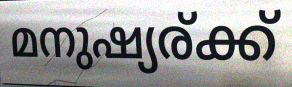
മനുഷ്യര്ക്ക്